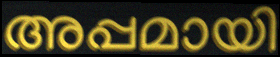
അപ്പമായി